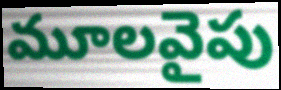
మూలవైపు